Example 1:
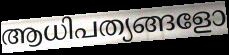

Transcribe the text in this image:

ആധിപത്യങ്ങളോ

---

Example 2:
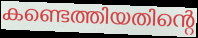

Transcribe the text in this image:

കണ്ടെത്തിയതിന്റെ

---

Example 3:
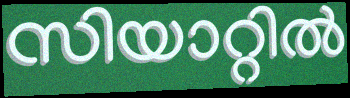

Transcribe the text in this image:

സിയാറ്റിൽ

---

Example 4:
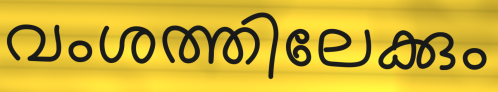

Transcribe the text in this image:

വംശത്തിലേക്കും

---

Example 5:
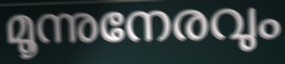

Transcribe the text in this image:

മൂന്നുനേരവും